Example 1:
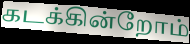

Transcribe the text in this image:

கடக்கின்றோம்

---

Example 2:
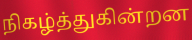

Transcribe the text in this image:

நிகழ்த்துகின்றன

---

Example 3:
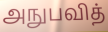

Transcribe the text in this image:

அநுபவித்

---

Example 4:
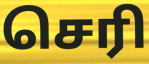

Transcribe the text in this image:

செரி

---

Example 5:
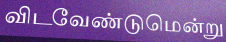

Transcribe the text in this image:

விடவேண்டுமென்று